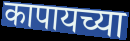
कापायच्या